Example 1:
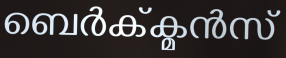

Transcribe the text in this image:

ബെർക്ക്മൻസ്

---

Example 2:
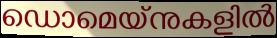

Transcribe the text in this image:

ഡൊമെയ്നുകളിൽ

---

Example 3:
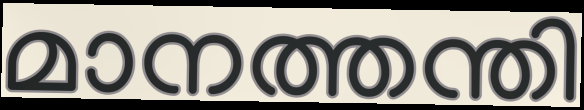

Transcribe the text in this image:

മാനത്തന്തി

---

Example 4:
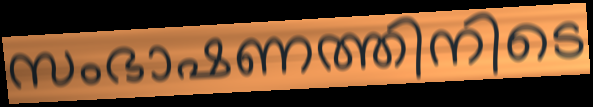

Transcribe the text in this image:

സംഭാഷണത്തിനിടെ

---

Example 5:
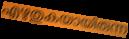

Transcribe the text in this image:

എഴുതുകയായിരുന്ന